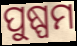
ପୁଷ୍ପମ